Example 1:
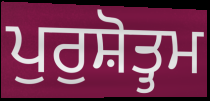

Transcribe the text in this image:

ਪੁਰੁਸ਼ੋਤ੍ਤਮ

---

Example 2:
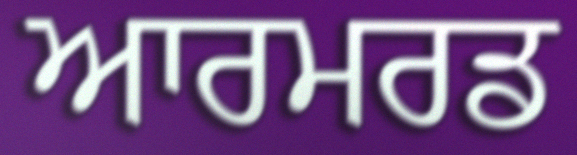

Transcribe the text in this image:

ਆਰਮਰਡ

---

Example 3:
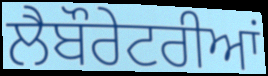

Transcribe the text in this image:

ਲੈਬੌਰੇਟਰੀਆਂ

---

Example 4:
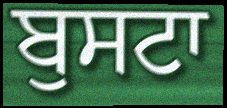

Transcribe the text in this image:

ਬੁਸਟਾ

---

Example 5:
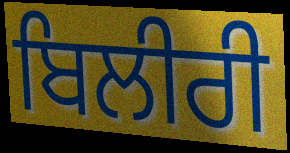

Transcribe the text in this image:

ਬਿਲੀਰੀ